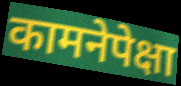
कामनेपेक्षा